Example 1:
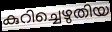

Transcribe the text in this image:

കുറിച്ചെഴുതിയ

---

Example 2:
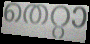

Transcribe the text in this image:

തെറ്റാ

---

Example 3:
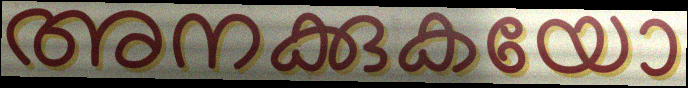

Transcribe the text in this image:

അനക്കുകയോ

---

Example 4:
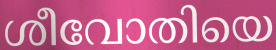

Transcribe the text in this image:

ശീവോതിയെ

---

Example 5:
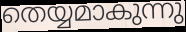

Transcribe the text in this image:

തെയ്യമാകുന്നു